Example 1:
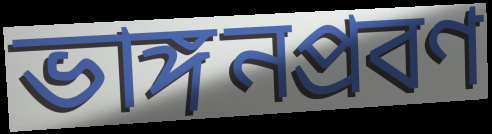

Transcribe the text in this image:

ভাঙ্গনপ্রবণ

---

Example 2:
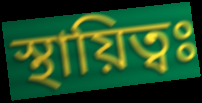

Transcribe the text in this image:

স্থায়িত্বঃ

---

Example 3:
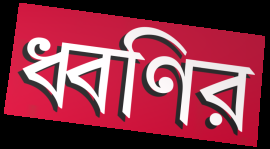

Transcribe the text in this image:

ধ্বণির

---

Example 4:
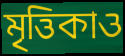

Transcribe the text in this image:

মৃত্তিকাও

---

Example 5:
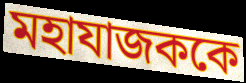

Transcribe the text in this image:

মহাযাজককে